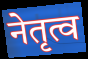
नेतृत्‍व